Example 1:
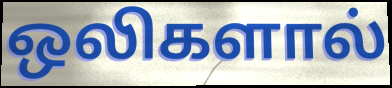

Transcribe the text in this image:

ஒலிகளால்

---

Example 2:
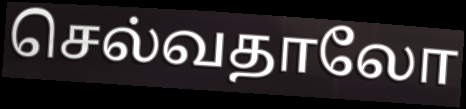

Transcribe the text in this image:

செல்வதாலோ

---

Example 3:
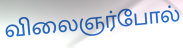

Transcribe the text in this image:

விலைஞர்போல்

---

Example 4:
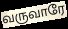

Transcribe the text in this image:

வருவாரே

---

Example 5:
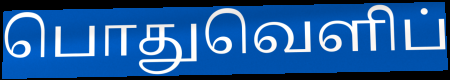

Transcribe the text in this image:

பொதுவெளிப்